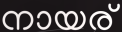
നായര്